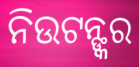
ନିଉଟନ୍ଙ୍କର